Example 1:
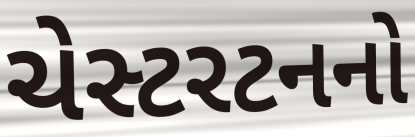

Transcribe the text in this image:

ચેસ્ટરટનનો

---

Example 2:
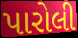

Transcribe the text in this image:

પારોલી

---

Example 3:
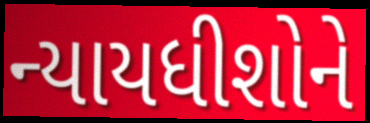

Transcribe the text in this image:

ન્યાયધીશોને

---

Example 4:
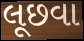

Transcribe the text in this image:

લૂછવા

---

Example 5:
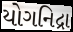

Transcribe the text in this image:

યોગનિદ્રા